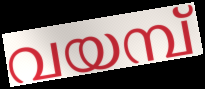
വയമ്പ്